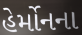
હેર્મોનના